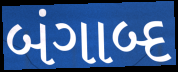
બંગાબ્દ